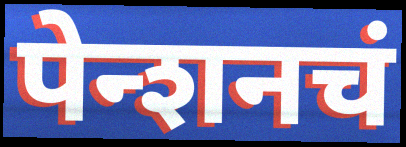
पेन्शनचं